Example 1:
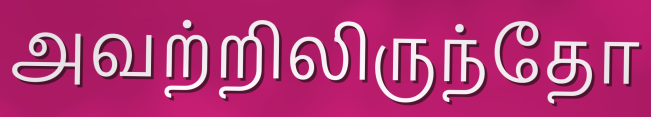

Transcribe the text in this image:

அவற்றிலிருந்தோ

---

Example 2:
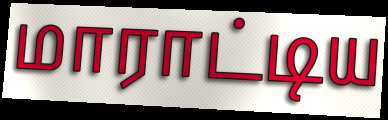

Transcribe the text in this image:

மாராட்டிய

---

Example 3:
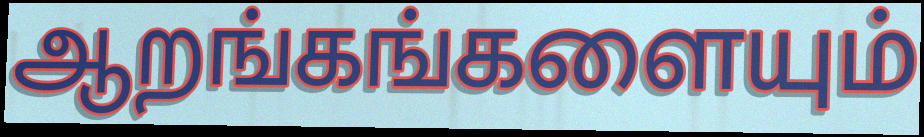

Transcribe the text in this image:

ஆறங்கங்களையும்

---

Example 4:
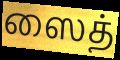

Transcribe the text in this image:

ஸைத்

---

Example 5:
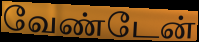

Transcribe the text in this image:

வேண்டேன்